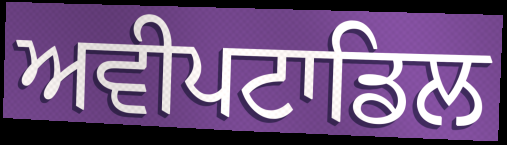
ਅਵੀਪਟਾਡਿਲ